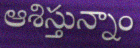
ఆశిస్తున్నాం